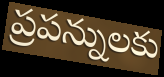
ప్రపన్నులకు